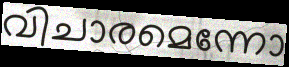
വിചാരമെന്നോ